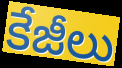
కేజీలు